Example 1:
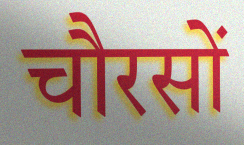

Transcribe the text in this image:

चौरसों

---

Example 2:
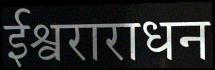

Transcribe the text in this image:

ईश्वराराधन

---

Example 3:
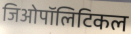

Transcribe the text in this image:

जिओपॉलिटिकल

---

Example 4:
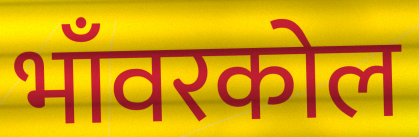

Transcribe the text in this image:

भाँवरकोल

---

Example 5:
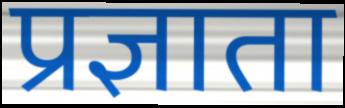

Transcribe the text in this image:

प्रज्ञाता